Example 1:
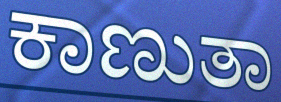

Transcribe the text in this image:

ಕಾಣುತಾ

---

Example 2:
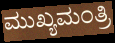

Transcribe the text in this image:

ಮುಖ್ಯಮಂತ್ರಿ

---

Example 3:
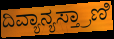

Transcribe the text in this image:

ದಿವ್ಯಾನ್ಯಸ್ತ್ರಾಣಿ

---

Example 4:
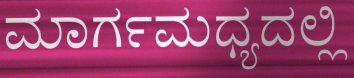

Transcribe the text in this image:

ಮಾರ್ಗಮಧ್ಯದಲ್ಲಿ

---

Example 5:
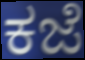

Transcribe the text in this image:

ಕಜೆ